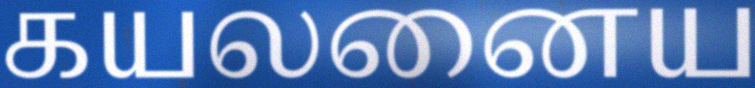
கயலனைய